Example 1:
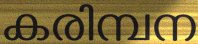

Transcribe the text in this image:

കരിമ്പന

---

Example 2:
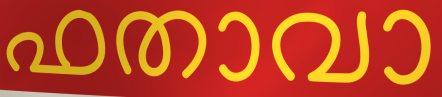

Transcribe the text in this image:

ഫതാവാ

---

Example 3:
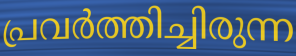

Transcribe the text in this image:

പ്രവർത്തിച്ചിരുന്ന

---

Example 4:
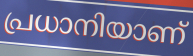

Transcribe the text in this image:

പ്രധാനിയാണ്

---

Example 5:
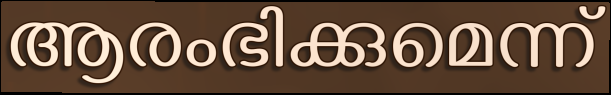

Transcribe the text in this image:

ആരംഭിക്കുമെന്ന്